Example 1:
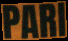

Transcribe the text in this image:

PARI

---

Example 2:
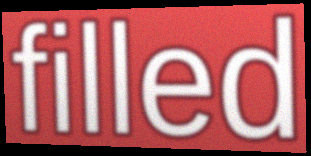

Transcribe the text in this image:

filled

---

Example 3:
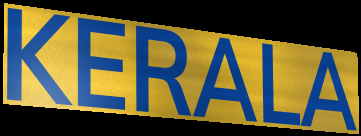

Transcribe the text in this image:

KERALA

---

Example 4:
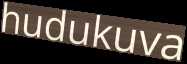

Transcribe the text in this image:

hudukuva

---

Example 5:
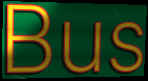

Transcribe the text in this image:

Bus